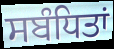
ਸਬੰਧਿਤਾਂ